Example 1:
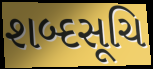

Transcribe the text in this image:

શબ્દસૂચિ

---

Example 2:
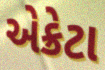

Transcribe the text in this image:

એક્રેટા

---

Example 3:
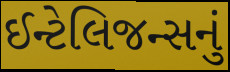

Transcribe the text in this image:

ઈન્ટેલિજન્સનું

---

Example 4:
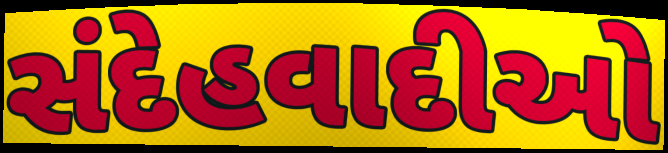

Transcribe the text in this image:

સંદેહવાદીઓ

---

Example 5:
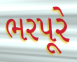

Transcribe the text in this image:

ભરપૂરે